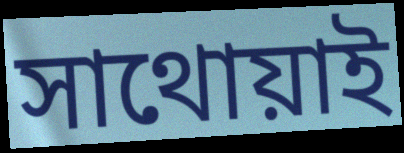
সাথোয়াই